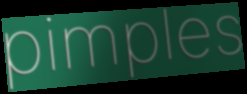
pimples